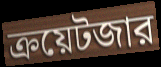
ক্রয়েটজার